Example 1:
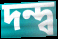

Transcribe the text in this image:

দন্দ্ব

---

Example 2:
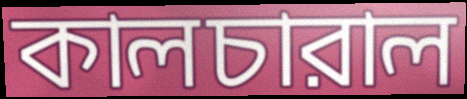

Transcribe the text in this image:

কালচারাল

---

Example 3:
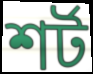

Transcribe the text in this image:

শর্ট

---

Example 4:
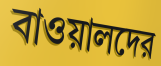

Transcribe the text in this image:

বাওয়ালদের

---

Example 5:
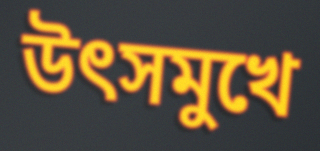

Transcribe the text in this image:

উৎসমুখে